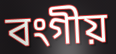
বংগীয়